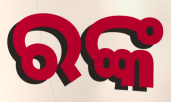
ରଙ୍କ